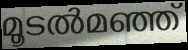
മൂടൽമഞ്ഞ്